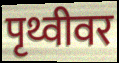
पृथ्वीवर